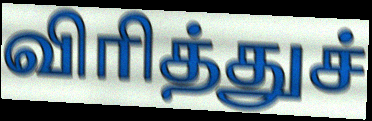
விரித்துச்